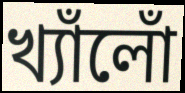
খ্যাঁলোঁ